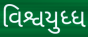
વિશ્વયુધ્ધ